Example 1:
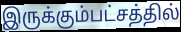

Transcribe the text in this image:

இருக்கும்பட்சத்தில்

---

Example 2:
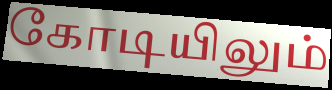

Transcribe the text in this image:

கோடியிலும்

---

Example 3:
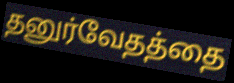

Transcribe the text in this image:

தனுர்வேதத்தை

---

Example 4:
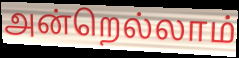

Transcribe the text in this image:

அன்றெல்லாம்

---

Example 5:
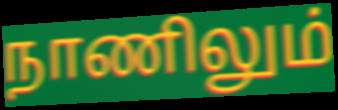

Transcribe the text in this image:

நாணிலும்